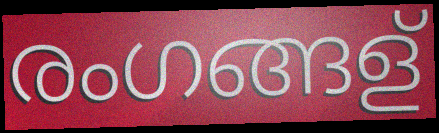
രംഗങ്ങള്